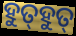
ହୁତ୍‍ହୁତ୍